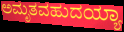
ಅಮೃತವಹುದಯ್ಯಾ